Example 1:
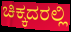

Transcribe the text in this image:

ಚಿಕ್ಕದರಲ್ಲಿ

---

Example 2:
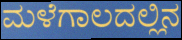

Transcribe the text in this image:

ಮಳೆಗಾಲದಲ್ಲಿನ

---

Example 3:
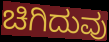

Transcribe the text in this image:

ಚಿಗಿದುವು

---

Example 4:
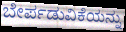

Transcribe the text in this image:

ಬೇರ್ಪಡುವಿಕೆಯನ್ನು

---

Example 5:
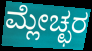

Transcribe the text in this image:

ಮ್ಲೇಚ್ಛರ